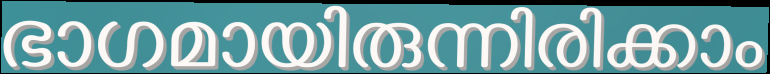
ഭാഗമായിരുന്നിരിക്കാം